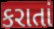
કરાતાં